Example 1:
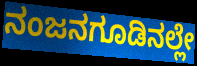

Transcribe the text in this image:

ನಂಜನಗೂಡಿನಲ್ಲೇ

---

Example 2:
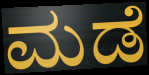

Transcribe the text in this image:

ಮಡೆ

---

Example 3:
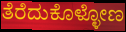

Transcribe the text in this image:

ತೆರೆದುಕೊಳ್ಳೋಣ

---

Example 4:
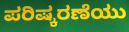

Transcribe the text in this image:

ಪರಿಷ್ಕರಣೆಯು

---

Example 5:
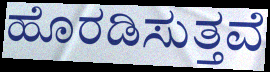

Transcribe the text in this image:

ಹೊರಡಿಸುತ್ತವೆ